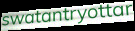
swatantryottar